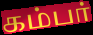
கம்பர்